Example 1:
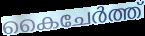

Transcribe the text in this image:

കൈചേർത്ത്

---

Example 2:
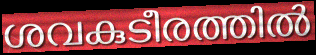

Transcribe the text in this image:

ശവകുടീരത്തിൽ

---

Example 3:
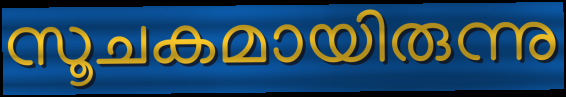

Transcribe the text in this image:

സൂചകമായിരുന്നു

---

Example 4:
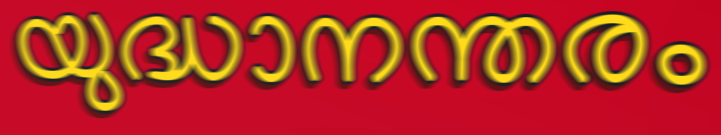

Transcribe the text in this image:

യുദ്ധാനന്തരം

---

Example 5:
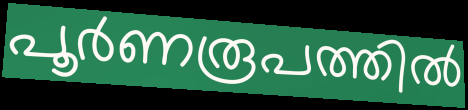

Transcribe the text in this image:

പൂർണരൂപത്തിൽ